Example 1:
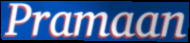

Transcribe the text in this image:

Pramaan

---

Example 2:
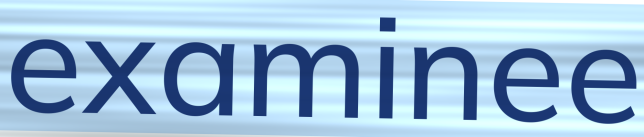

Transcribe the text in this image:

examinee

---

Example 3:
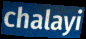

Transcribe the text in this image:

chalayi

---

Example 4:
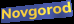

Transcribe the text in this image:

Novgorod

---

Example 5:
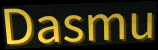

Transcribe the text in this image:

Dasmu